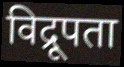
विद्रूपता